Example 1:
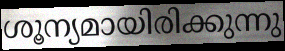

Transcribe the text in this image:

ശൂന്യമായിരിക്കുന്നു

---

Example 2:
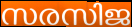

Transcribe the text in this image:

സരസിജ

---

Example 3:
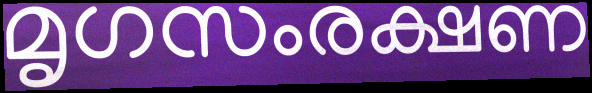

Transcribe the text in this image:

മൃഗസംരക്ഷണ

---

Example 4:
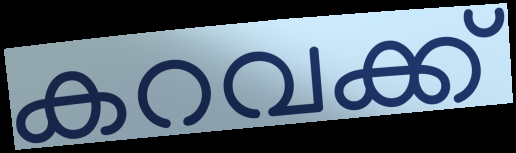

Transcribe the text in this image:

കറവക്ക്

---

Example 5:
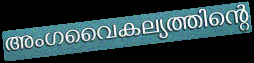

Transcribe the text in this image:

അംഗവൈകല്യത്തിന്റെ